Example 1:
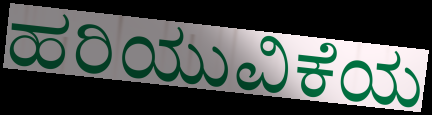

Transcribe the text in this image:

ಹರಿಯುವಿಕೆಯ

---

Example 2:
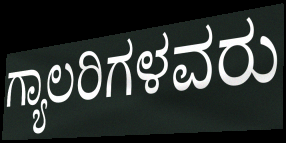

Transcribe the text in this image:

ಗ್ಯಾಲರಿಗಳವರು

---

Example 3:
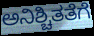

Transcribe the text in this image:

ಅನಿಶ್ಚಿತತೆಗೆ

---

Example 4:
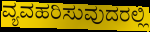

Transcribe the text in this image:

ವ್ಯವಹರಿಸುವುದರಲ್ಲಿ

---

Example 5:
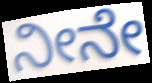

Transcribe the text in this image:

ನೀನೇ